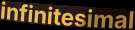
infinitesimal